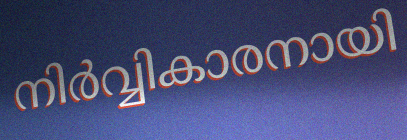
നിർവ്വികാരനായി